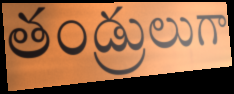
తండ్రులుగా